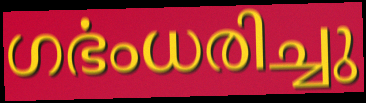
ഗൎഭംധരിച്ചു